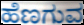
ಹೆಣಗುವ